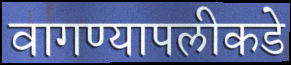
वागण्यापलीकडे